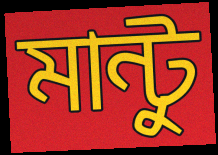
মান্টু